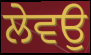
ਲੇਵਉ